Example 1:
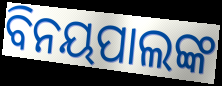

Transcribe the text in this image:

ବିନୟପାଲଙ୍କ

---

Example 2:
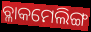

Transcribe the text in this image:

ବ୍ଳାକମେଲିଙ୍ଗ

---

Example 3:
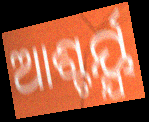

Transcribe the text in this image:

ଆଶ୍ଚର୍ୟ୍ଯ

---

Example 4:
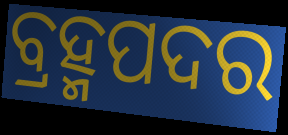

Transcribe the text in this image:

ବ୍ରହ୍ମପଦର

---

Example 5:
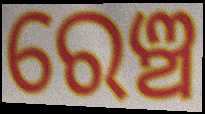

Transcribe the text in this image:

ରେଞ୍ଚ